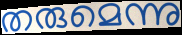
തരുമെന്നു